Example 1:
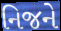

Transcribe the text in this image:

નિજને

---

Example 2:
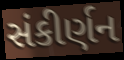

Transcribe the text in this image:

સંકીર્ણન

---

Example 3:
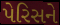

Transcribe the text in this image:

પેરિસને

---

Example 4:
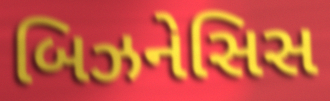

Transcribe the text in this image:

બિઝનેસિસ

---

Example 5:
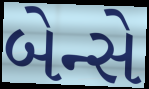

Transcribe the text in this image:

બેન્સે